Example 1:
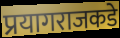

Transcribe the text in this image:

प्रयागराजकडे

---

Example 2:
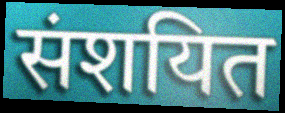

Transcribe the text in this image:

संशयित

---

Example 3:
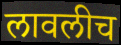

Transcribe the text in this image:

लावलीच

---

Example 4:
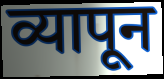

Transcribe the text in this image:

व्यापून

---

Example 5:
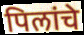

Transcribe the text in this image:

पिलांचे